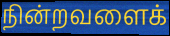
நின்றவளைக்